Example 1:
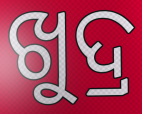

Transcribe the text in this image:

ଖୁଦ୍ର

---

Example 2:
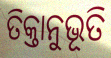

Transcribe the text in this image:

ତିକ୍ତାନୁଭୂତି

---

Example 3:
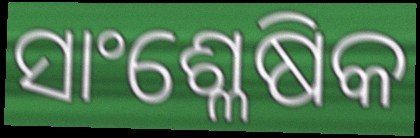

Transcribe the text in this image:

ସାଂଶ୍ଳେଷିକ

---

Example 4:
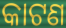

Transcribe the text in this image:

କାଟଣ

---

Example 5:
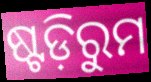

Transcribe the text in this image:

ଷ୍ଟଡ଼ିରୁମ